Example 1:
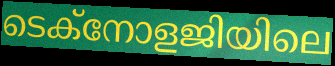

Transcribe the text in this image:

ടെക്നോളജിയിലെ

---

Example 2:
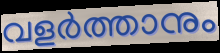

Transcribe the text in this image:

വളർത്താനും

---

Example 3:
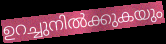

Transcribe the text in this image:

ഉറച്ചുനിൽക്കുകയും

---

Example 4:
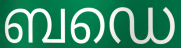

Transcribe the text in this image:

ബഡെ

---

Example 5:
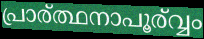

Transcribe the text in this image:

പ്രാര്ത്ഥനാപൂര്വ്വം